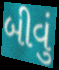
બીવું